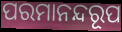
ପରମାନନ୍ଦରୂପ